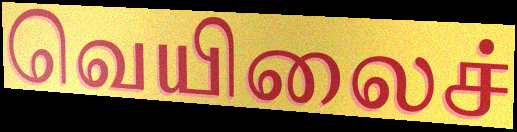
வெயிலைச்